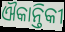
ଐକାନ୍ତିକୀ